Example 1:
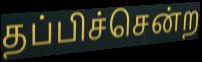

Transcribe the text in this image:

தப்பிச்சென்ற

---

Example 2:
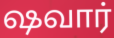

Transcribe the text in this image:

ஷவார்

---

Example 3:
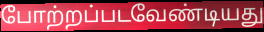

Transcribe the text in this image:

போற்றப்படவேண்டியது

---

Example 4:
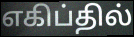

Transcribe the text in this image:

எகிப்தில்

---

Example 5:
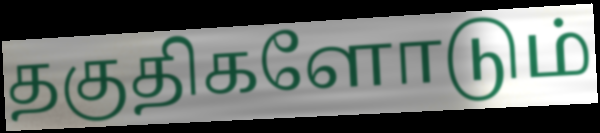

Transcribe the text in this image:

தகுதிகளோடும்